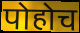
पोहोच